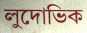
লুদোভিক